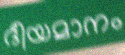
ദീയമാനം